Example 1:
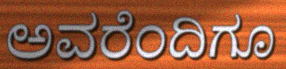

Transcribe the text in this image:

ಅವರೆಂದಿಗೂ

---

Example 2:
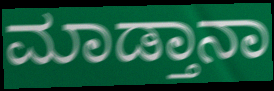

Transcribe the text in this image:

ಮಾಡ್ತಾನಾ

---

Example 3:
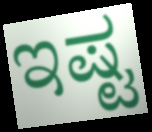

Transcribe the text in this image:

ಇಷ್ಟ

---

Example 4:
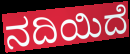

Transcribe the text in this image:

ನದಿಯಿದೆ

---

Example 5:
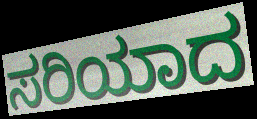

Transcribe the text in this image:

ಸರಿಯಾದ